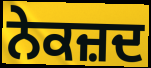
ਨੇਕਜ਼ਦ